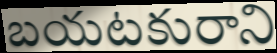
బయటకురాని